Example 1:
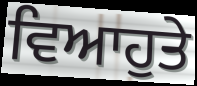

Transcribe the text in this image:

ਵਿਆਹੁਤੇ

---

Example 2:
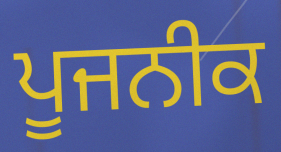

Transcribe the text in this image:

ਪੂਜਨੀਕ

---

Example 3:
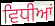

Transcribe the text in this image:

ਵਿਧੀਆਂ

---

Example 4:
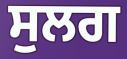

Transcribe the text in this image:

ਸੁਲਗ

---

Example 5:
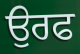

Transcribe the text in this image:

ਉਰਫ